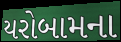
યરોબામના